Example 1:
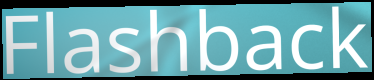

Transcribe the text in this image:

Flashback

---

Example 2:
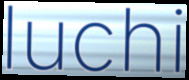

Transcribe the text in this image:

luchi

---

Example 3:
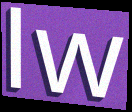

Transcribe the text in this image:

Iw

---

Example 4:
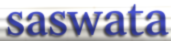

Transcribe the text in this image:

saswata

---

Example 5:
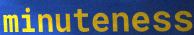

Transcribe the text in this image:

minuteness